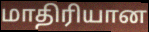
மாதிரியான